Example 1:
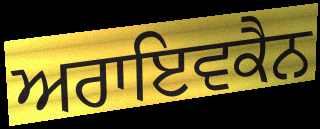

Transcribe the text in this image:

ਅਰਾਇਵਕੈਨ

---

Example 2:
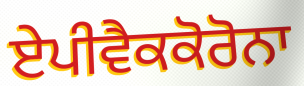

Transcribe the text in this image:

ਏਪੀਵੈਕਕੋਰੋਨਾ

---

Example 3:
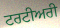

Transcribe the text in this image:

ਟਰਟੀਅਰੀ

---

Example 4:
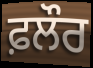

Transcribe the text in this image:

ਫ਼ਲੌਰ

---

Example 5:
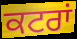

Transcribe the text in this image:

ਕਟਰਾਂ